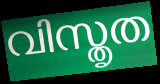
വിസ്തൃത